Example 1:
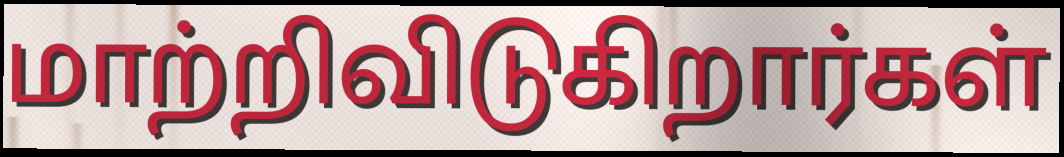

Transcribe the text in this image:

மாற்றிவிடுகிறார்கள்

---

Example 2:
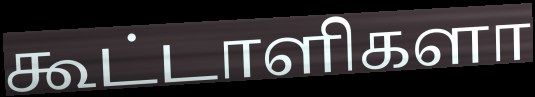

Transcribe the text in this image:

கூட்டாளிகளா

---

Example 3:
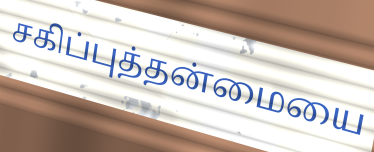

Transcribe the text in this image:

சகிப்புத்தன்மையை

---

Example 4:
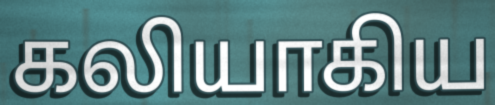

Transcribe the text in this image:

கலியாகிய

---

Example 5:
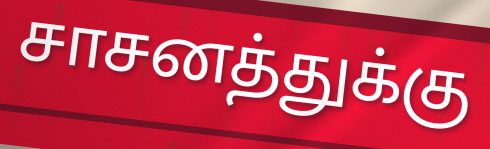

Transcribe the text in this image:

சாசனத்துக்கு